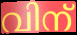
വിന്